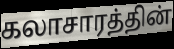
கலாசாரத்தின்